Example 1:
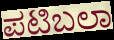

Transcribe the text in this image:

ಪಟಿಬಲಾ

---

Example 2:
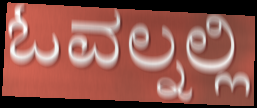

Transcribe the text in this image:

ಓವಲ್ನಲ್ಲಿ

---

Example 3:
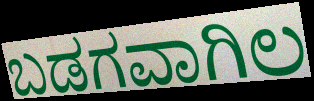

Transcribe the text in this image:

ಬಡಗವಾಗಿಲ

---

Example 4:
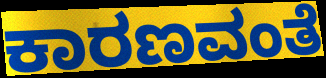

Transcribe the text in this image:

ಕಾರಣವಂತೆ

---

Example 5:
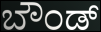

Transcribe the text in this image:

ಬೌಂಡ್